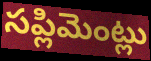
సప్లిమెంట్లు